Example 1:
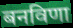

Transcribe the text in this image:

बनविणा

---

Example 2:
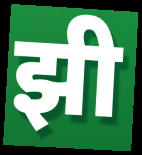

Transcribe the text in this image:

झी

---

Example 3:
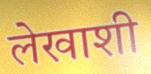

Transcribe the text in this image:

लेखाशी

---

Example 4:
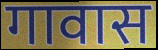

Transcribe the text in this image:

गावास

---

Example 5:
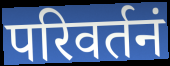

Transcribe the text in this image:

परिवर्तनं